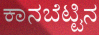
ಕಾನಬೆಟ್ಟಿನ